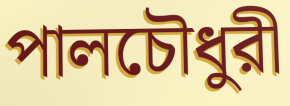
পালচৌধুরী